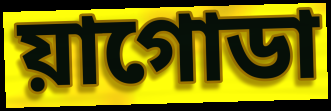
য়াগোডা